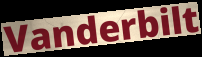
Vanderbilt